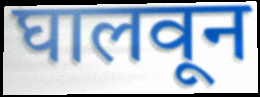
घालवून